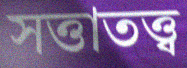
সত্তাতত্ত্ব